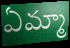
ఏమ్మా